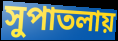
সুপাতলায়